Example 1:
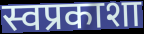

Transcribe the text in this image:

स्वप्रकाशा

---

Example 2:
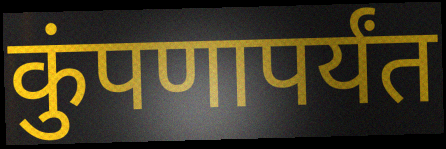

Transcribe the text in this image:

कुंपणापर्यंत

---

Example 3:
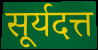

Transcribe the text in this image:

सूर्यदत्त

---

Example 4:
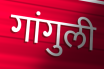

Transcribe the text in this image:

गांगुली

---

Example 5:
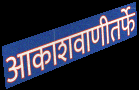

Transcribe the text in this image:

आकाशवाणीतर्फे